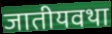
जातीयवथा